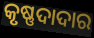
କୃଷ୍ଣଦାଦାର